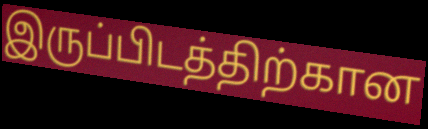
இருப்பிடத்திற்கான